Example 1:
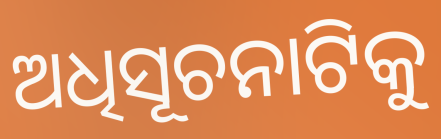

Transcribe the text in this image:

ଅଧିସୂଚନାଟିକୁ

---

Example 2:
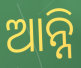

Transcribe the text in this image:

ଆନ୍ନି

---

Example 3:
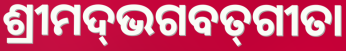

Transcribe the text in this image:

ଶ୍ରୀମଦ୍‌ଭଗବତ୍‌ଗୀତା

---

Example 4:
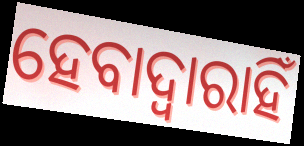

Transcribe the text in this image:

ହେବାଦ୍ଵାରାହିଁ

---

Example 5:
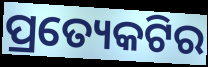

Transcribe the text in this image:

ପ୍ରତ୍ୟେକଟିର